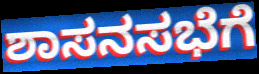
ಶಾಸನಸಭೆಗೆ